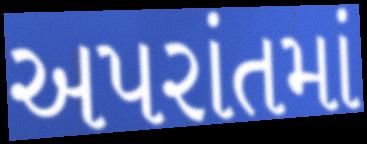
અપરાંતમાં